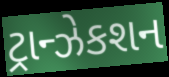
ટ્રાન્ઝેકશન